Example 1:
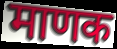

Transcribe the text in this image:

माणक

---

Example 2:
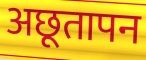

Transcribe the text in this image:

अछूतापन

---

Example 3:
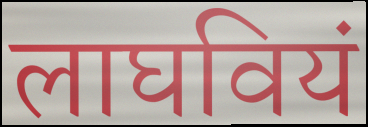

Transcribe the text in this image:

लाघवियं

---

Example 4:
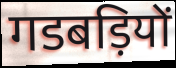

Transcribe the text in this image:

गडबड़ियों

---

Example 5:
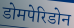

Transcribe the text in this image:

डोमपेरिडोन